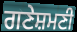
ਗਣੇਸ਼ਮਣੀ